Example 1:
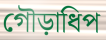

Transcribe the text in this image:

গৌড়াধিপ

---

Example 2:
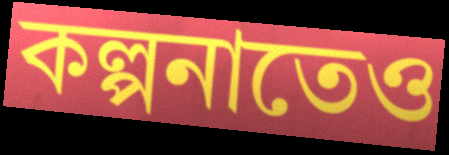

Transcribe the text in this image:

কল্পনাতেও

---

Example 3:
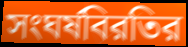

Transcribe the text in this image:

সংঘর্ষবিরতির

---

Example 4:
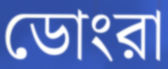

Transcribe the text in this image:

ডোংরা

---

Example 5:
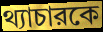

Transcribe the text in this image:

থ্যাচারকে